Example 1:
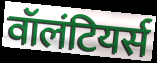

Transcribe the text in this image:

वॉलंटियर्स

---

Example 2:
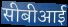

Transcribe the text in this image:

सीबीआई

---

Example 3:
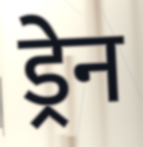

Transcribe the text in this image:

ड्रेन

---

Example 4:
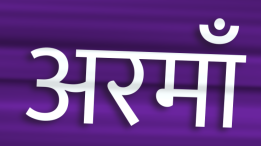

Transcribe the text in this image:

अरमाँ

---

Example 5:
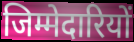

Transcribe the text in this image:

जिम्मेदारियों